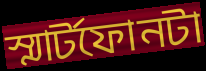
স্মার্টফোনটা